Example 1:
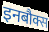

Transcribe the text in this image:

इनबौक्स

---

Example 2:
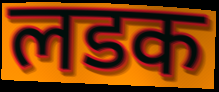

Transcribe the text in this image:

लडक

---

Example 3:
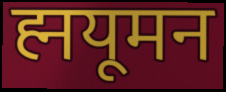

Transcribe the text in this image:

ह्मयूमन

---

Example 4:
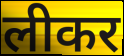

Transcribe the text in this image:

लीकर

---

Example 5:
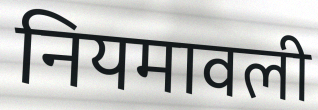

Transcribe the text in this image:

नियमावली